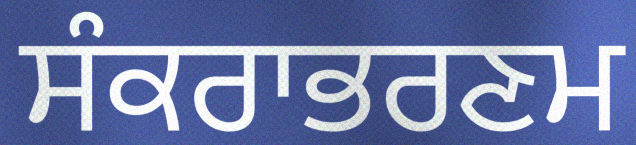
ਸੰਕਰਾਭਰਣਮ